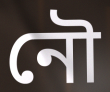
নৌ